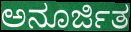
ಅನೂರ್ಜಿತ